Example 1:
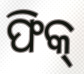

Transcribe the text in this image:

ଫିକ୍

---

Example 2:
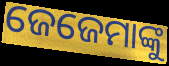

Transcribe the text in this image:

ଜେଜେମାଙ୍କୁ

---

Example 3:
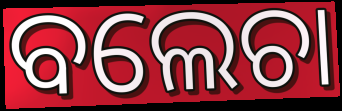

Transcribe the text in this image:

ବଲେଚା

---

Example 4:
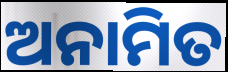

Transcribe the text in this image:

ଅନାମିତ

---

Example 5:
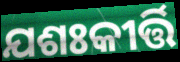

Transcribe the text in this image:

ଯଶଃକୀର୍ତ୍ତି